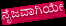
ನೈಜವಾಗಿಯೇ